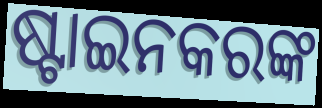
ଷ୍ଟାଇନକରଙ୍କ